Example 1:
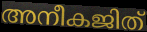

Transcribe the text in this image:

അനീകജിത്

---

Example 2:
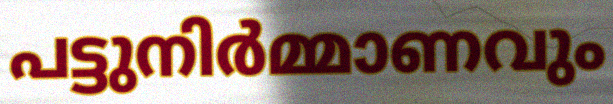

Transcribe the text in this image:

പട്ടുനിർമ്മാണവും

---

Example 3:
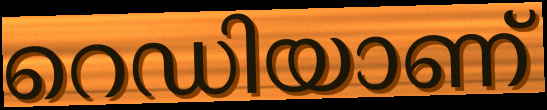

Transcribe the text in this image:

റെഡിയാണ്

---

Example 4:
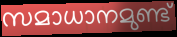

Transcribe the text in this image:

സമാധാനമുണ്ട്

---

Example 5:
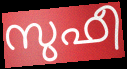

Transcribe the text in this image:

സുഫീ